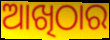
ଆଖିଠାର